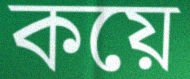
কয়ে